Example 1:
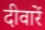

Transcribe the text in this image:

दीवारें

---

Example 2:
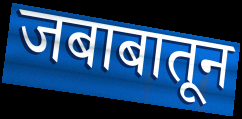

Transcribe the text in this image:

जबाबातून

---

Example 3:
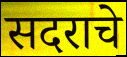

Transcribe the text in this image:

सदराचे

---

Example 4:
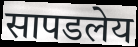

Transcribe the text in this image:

सापडलेय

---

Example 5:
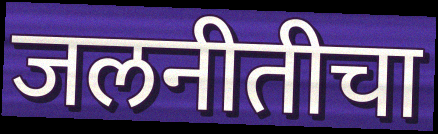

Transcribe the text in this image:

जलनीतीचा